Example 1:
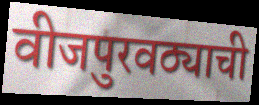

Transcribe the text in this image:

वीजपुरवठ्याची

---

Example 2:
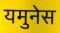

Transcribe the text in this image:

यमुनेस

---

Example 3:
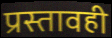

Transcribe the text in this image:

प्रस्तावही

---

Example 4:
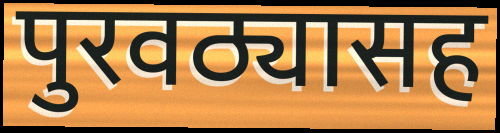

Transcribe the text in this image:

पुरवठ्यासह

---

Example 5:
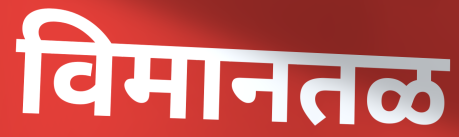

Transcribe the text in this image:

विमानतळ